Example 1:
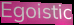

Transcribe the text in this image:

Egoistic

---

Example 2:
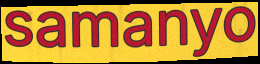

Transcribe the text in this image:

samanyo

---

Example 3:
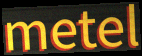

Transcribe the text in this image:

metel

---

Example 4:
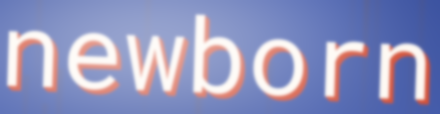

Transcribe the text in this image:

newborn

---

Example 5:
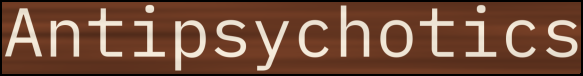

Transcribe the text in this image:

Antipsychotics